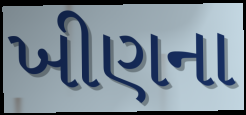
ખીણના